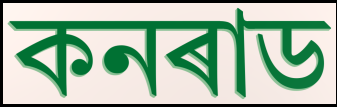
কনৰাড